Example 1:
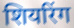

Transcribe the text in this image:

शियरिंग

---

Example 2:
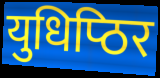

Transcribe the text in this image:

युधिप्ठिर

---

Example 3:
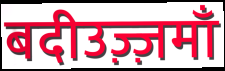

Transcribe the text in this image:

बदीउज़्ज़माँ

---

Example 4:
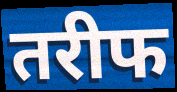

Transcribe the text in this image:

तरीफ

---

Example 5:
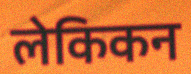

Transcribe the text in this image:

लेकिकन